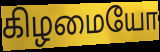
கிழமையோ